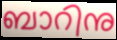
ബാറിനു